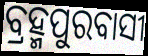
ବ୍ରହ୍ମପୁରବାସୀ